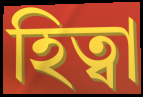
হিত্বা